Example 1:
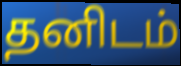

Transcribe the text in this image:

தனிடம்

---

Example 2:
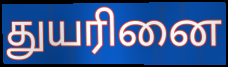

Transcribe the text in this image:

துயரினை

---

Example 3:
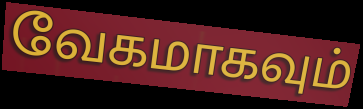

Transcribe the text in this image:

வேகமாகவும்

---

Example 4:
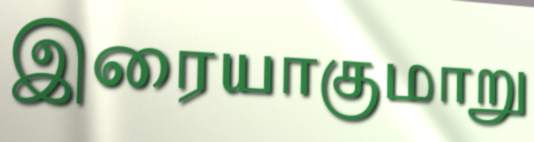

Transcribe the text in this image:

இரையாகுமாறு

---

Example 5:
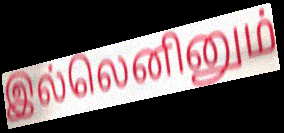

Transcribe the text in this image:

இல்லெனினும்